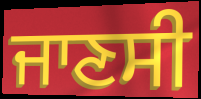
ਜਾਣਸੀ